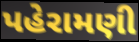
પહેરામણી